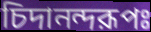
চিদানন্দরূপঃ